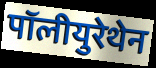
पॉलीयुरेथेन